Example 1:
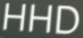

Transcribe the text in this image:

HHD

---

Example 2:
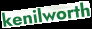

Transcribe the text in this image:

kenilworth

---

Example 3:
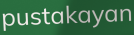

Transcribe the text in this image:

pustakayan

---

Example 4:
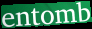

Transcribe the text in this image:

entomb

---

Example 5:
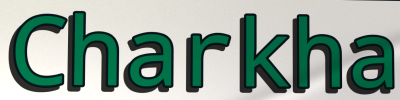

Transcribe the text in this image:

Charkha